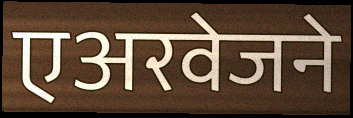
एअरवेजने